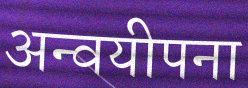
अन्वयीपना